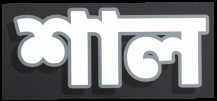
শাল